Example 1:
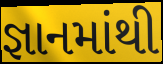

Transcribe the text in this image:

જ્ઞાનમાંથી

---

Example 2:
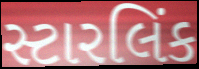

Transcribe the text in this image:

સ્ટારલિંક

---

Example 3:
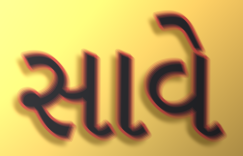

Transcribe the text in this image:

સાવે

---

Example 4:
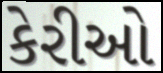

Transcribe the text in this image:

કેરીઓ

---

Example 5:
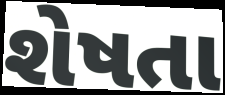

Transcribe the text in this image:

શેષતા